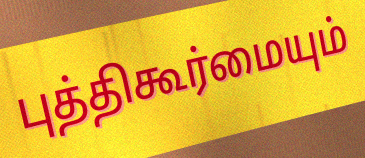
புத்திகூர்மையும்